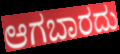
ಆಗಬಾರದು